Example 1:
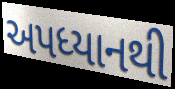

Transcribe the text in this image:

અપધ્યાનથી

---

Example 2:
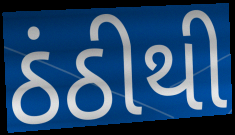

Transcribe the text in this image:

ઠંઠીથી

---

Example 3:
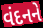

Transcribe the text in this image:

વંદનને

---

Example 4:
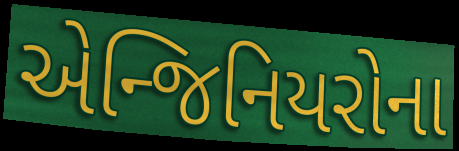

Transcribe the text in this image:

એન્જિનિયરોના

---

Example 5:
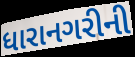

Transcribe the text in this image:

ધારાનગરીની